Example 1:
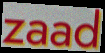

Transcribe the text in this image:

zaad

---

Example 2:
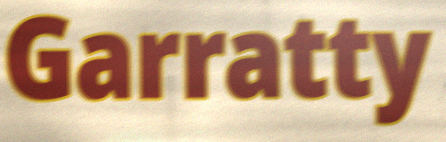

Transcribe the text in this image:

Garratty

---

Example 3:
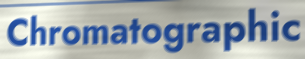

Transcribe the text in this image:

Chromatographic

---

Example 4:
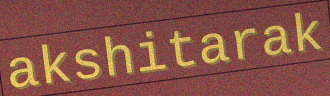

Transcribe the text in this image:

akshitarak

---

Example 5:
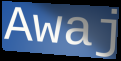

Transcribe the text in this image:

Awaj